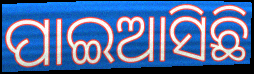
ପାଇଆସିଛି